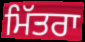
ਮਿੱਤਰਾ